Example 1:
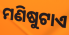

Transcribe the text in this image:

ମଣିଷୁଟାଏ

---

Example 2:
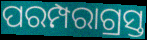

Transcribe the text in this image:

ପରମ୍ପରାଗ୍ରସ୍ତ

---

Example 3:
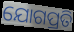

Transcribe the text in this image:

ଯୋଗପ୍ରତି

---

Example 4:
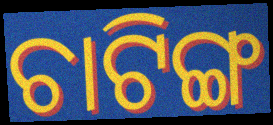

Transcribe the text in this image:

ଚାଟିଙ୍ଗ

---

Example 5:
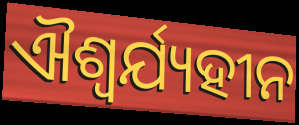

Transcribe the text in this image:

ଐଶ୍ୱର୍ଯ୍ୟହୀନ